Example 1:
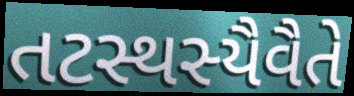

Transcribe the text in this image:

તટસ્થસ્યૈવૈતે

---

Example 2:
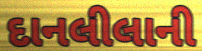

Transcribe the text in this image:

દાનલીલાની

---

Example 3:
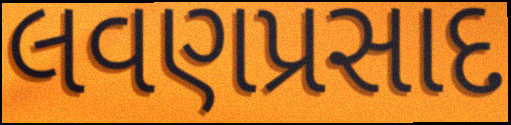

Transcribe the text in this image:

લવણપ્રસાદ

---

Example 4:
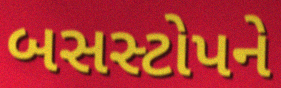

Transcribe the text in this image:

બસસ્ટોપને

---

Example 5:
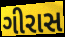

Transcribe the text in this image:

ગીરાસ